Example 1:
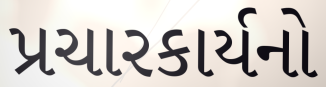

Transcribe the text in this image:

પ્રચારકાર્યનો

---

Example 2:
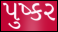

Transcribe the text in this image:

પુષ્કર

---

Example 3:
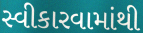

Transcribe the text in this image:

સ્વીકારવામાંથી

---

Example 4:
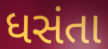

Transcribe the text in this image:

ધસંતા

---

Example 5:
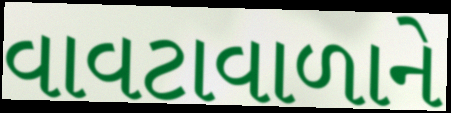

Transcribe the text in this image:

વાવટાવાળાને